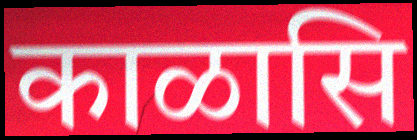
काळासि